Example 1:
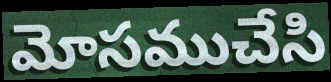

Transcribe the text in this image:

మోసముచేసి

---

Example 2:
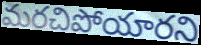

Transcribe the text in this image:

మరచిపోయారని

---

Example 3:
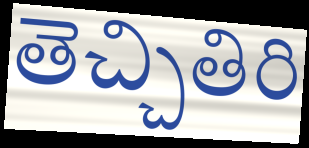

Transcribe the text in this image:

తెచ్చితిరి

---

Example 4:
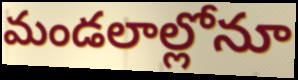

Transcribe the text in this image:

మండలాల్లోనూ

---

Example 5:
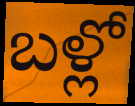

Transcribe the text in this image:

బళ్లో